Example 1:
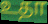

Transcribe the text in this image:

உதா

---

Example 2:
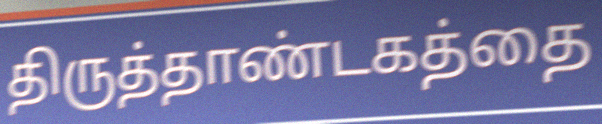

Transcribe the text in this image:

திருத்தாண்டகத்தை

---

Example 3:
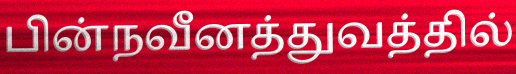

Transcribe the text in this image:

பின்நவீனத்துவத்தில்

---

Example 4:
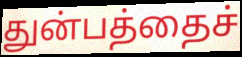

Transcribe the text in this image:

துன்பத்தைச்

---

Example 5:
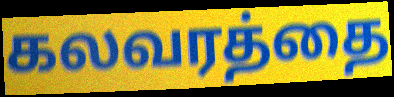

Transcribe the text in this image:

கலவரத்தை